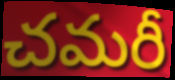
చమరీ